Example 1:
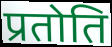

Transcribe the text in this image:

प्रतोति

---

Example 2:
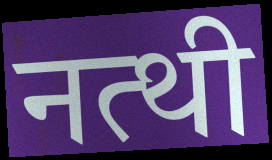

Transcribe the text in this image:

नत्‍थी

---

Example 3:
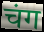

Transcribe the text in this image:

चंग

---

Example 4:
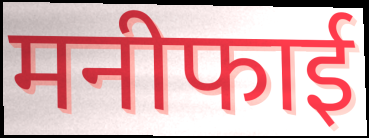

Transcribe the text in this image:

मनीफाई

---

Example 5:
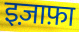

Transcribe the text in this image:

इज़ाफ़ा